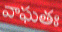
వాఘతః